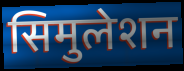
सिमुलेशन